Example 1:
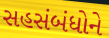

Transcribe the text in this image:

સહસંબંધોને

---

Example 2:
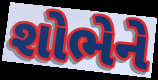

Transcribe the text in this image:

શોભેને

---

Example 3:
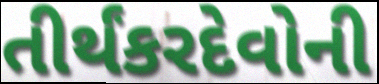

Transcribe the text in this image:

તીર્થંકરદેવોની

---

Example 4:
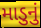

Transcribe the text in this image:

માડુનું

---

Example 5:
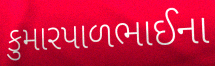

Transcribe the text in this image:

કુમારપાળભાઈના